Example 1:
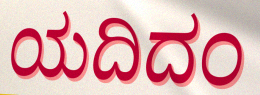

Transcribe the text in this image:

ಯದಿದಂ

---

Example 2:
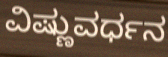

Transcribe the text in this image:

ವಿಷ್ಣುವರ್ಧನ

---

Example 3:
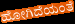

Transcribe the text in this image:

ಹೋಗಿದೆಯಂತೆ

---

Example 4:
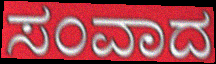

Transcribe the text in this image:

ಸಂವಾದ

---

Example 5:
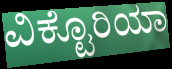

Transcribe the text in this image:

ವಿಕ್ಟೊರಿಯಾ